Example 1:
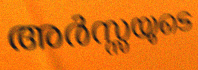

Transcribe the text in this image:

അർസ്സയുടെ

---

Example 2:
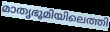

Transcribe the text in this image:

മാതൃഭൂമിയിലെത്തി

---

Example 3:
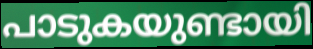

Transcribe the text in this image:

പാടുകയുണ്ടായി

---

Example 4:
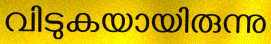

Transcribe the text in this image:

വിടുകയായിരുന്നു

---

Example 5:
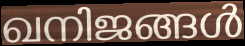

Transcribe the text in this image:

ഖനിജങ്ങൾ